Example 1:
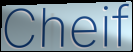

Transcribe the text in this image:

Cheif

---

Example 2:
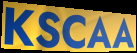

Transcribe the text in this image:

KSCAA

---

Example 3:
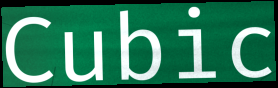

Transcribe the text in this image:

Cubic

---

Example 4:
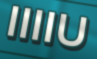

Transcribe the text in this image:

IIIIU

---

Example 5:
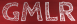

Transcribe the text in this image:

GMLR